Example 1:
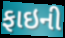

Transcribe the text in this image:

ફાઇની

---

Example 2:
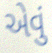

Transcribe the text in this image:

એવું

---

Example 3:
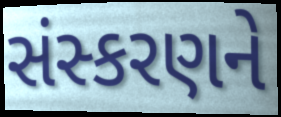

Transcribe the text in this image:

સંસ્કરણને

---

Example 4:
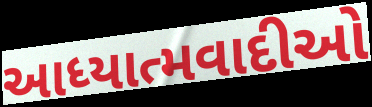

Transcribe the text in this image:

આધ્યાત્મવાદીઓ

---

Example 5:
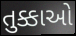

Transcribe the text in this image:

તુક્કાઓ